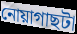
নোয়াগাছটা